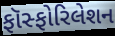
ફૉસ્ફોરિલેશન